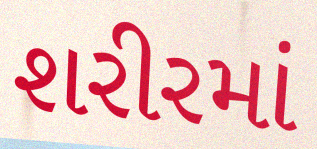
શરીરમાં